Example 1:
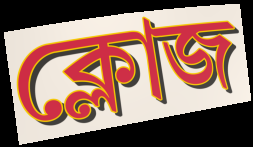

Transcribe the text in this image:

ক্লোজ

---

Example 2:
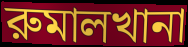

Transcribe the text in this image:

রুমালখানা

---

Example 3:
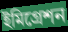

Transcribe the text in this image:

ইমিগ্রেশন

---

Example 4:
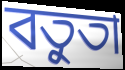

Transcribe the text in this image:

বতুতা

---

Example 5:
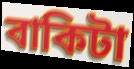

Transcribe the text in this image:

বাকিটা